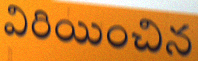
విరియించిన